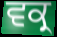
ਵਕ੍ਰ